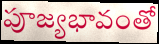
పూజ్యభావంతో